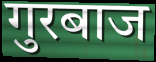
गुरबाज